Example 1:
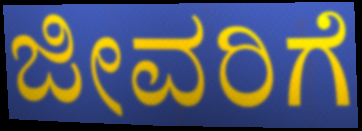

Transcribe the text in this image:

ಜೀವರಿಗೆ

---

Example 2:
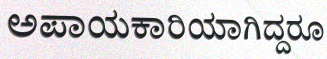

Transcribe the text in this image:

ಅಪಾಯಕಾರಿಯಾಗಿದ್ದರೂ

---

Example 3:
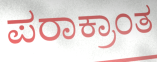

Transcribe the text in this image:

ಪರಾಕ್ರಾಂತ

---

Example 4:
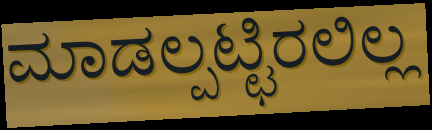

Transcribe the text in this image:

ಮಾಡಲ್ಪಟ್ಟಿರಲಿಲ್ಲ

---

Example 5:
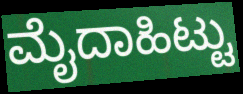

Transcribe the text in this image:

ಮೈದಾಹಿಟ್ಟು